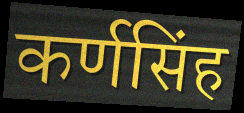
कर्णसिंह